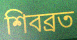
শিবব্রত